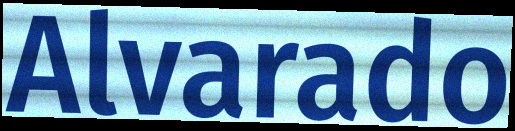
Alvarado